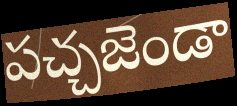
పచ్చజెండా